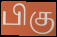
பிகு